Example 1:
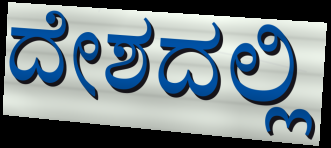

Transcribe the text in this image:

ದೇಶದಲ್ಲಿ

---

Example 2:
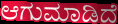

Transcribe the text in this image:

ಆಗುಮಾಡಿದೆ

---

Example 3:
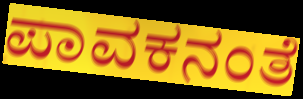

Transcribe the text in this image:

ಪಾವಕನಂತೆ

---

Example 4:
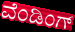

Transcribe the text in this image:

ವೆಂಡಿಂಗ್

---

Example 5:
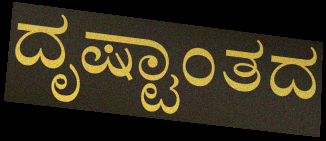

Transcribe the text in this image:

ದೃಷ್ಟಾಂತದ